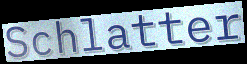
Schlatter